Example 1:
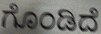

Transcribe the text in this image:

ಗೊಂಡಿದೆ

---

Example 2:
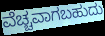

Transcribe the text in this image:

ವೆಚ್ಚವಾಗಬಹುದು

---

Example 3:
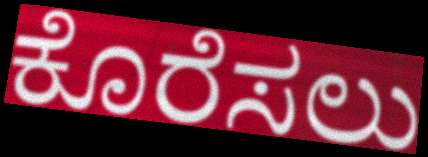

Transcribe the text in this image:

ಕೊರೆಸಲು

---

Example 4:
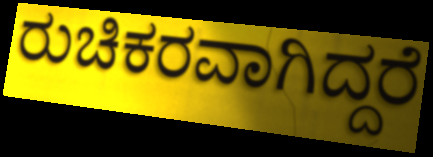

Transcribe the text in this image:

ರುಚಿಕರವಾಗಿದ್ದರೆ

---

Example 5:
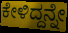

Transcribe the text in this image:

ಕೇಳಿದ್ದನ್ನೇ